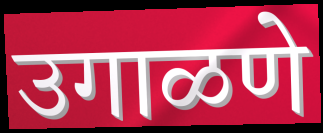
उगाळणे